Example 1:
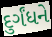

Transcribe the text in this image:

દુર્ગંધને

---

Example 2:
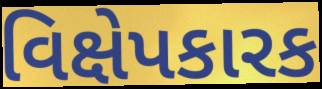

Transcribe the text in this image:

વિક્ષેપકારક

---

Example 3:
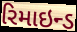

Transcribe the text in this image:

રિમાઇન્ડ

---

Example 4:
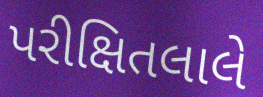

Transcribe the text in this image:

પરીક્ષિતલાલે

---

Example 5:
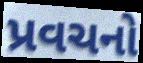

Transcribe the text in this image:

પ્રવચનો